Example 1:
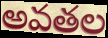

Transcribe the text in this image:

అవతల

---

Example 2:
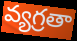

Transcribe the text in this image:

వ్యగ్రతా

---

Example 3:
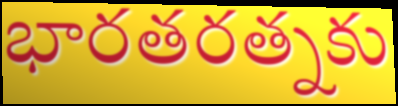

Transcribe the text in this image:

భారతరత్నకు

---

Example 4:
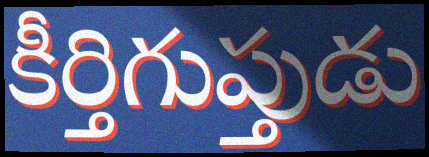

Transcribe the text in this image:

కీర్తిగుప్తుడు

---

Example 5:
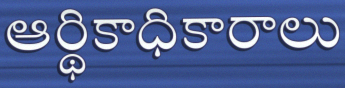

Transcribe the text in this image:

ఆర్థికాధికారాలు